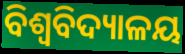
ବିଶ୍ଵବିଦ୍ୟାଳୟ